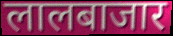
लालबाजार